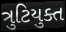
ત્રુટિયુક્ત